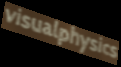
visualphysics